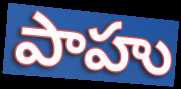
పాహు